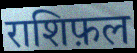
राशिफ़ल